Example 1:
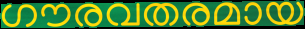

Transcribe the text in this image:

ഗൗരവതരമായ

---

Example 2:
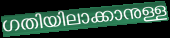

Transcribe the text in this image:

ഗതിയിലാക്കാനുള്ള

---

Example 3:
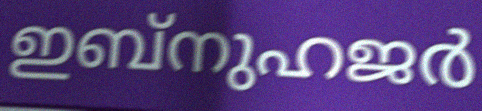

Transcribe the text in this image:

ഇബ്നുഹജർ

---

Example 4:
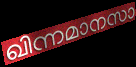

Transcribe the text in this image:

ഖിന്നമാനസാ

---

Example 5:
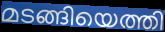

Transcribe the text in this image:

മടങ്ങിയെത്തി